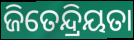
ଜିତେନ୍ଦ୍ରିୟତା